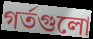
গর্তগুলো